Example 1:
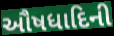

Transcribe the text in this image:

ઔષધાદિની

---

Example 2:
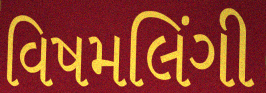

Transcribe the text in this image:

વિષમલિંગી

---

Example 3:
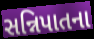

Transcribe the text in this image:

સન્નિપાતના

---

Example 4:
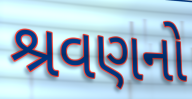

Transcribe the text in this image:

શ્રવણનો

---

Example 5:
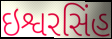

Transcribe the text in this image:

ઇશ્વરસિંહ